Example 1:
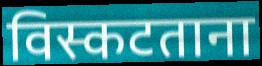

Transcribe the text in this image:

विस्कटताना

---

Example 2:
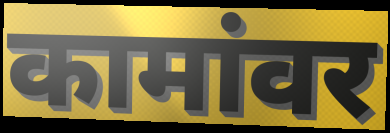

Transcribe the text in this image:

कामांवर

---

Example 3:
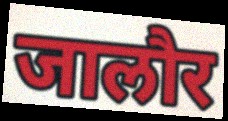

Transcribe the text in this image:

जालौर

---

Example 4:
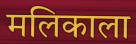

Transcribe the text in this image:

मलिकाला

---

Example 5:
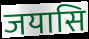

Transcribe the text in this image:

जयासि